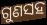
ଗୁଣସହ